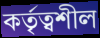
কৰ্তৃত্বশীল